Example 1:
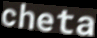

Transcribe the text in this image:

cheta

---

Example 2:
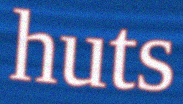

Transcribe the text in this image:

huts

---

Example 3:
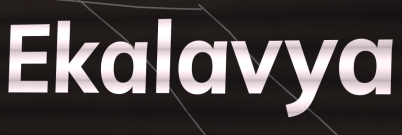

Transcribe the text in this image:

Ekalavya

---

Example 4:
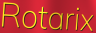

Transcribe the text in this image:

Rotarix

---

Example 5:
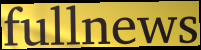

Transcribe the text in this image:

fullnews